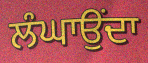
ਲੰਘਾਉਂਦਾ